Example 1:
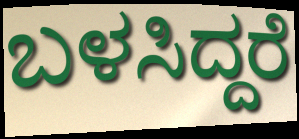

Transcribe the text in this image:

ಬಳಸಿದ್ದರೆ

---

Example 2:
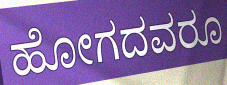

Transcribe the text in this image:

ಹೋಗದವರೂ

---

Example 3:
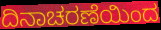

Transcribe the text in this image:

ದಿನಾಚರಣೆಯಿಂದ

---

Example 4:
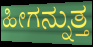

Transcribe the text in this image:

ಹೀಗನ್ನುತ್ತ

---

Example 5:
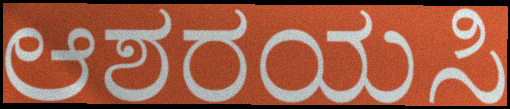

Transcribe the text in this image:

ಆಶರಯಸಿ